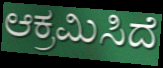
ಆಕ್ರಮಿಸಿದೆ